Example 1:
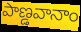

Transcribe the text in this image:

పాణ్డవానాం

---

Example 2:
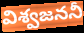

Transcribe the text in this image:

విశ్వజననీ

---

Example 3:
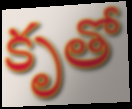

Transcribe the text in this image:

కృతో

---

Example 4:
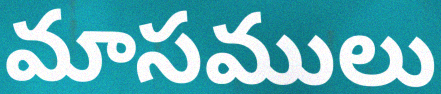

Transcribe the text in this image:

మాసములు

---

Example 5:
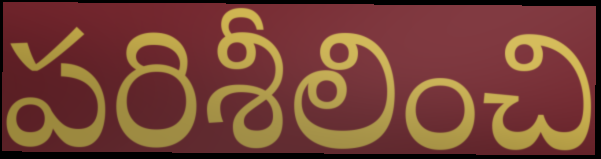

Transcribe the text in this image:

పరిశీలించి